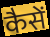
कैसें